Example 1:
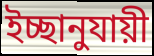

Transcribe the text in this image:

ইচ্ছানুযায়ী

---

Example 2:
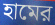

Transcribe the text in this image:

হামের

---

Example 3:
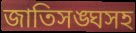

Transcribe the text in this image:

জাতিসঙ্ঘসহ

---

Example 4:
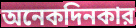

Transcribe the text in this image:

অনেকদিনকার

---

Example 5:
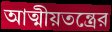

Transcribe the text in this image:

আত্মীয়তন্ত্রের